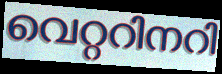
വെറ്ററിനറി